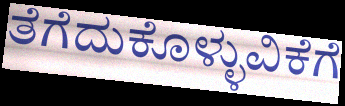
ತೆಗೆದುಕೊಳ್ಳುವಿಕೆಗೆ